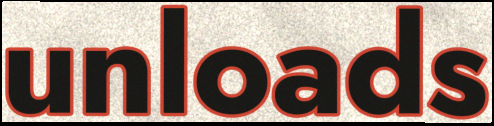
unloads